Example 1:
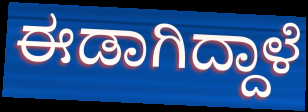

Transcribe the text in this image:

ಈಡಾಗಿದ್ದಾಳೆ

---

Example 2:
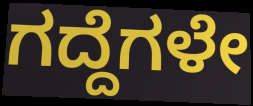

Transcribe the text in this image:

ಗದ್ದೆಗಳೇ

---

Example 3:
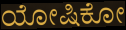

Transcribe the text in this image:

ಯೋಷಿಕೋ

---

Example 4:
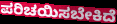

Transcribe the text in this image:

ಪರಿಚಯಿಸಬೇಕಿದೆ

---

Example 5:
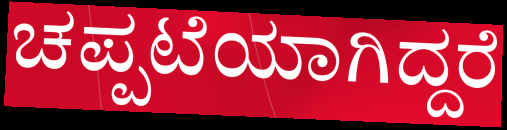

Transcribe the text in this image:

ಚಪ್ಪಟೆಯಾಗಿದ್ದರೆ